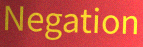
Negation